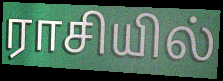
ராசியில்